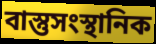
বাস্তুসংস্থানিক